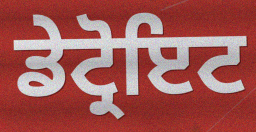
ਡੇਟ੍ਰੋਇਟ